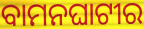
ବାମନଘାଟୀର